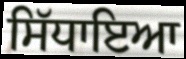
ਸਿੱਧਾਇਆ